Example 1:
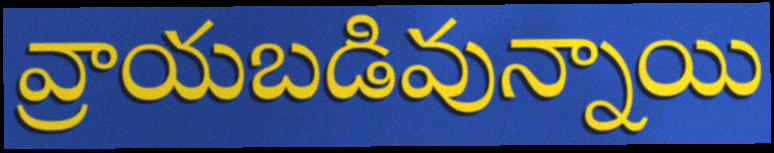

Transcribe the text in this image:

వ్రాయబడివున్నాయి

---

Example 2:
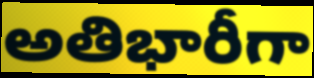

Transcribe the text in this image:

అతిభారీగా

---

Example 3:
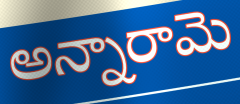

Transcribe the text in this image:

అన్నారామె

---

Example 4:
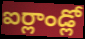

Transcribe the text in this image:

ఐర్లాండ్లో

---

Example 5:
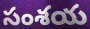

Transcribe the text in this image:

సంశయ